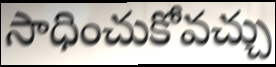
సాధించుకోవచ్చు